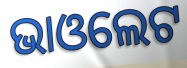
ଭାଓଲେଟ